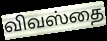
விவஸ்தை